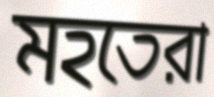
মহতেরা